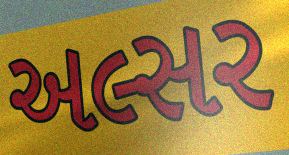
અલ્સર